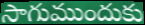
సాగుముందుకు